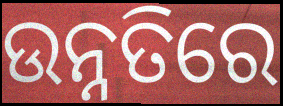
ଉନ୍ନତିରେ